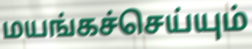
மயங்கச்செய்யும்